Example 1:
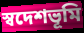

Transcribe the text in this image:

স্বদেশভূমি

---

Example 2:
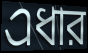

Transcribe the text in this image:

এধার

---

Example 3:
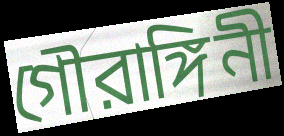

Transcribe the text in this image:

গৌরাঙ্গিনী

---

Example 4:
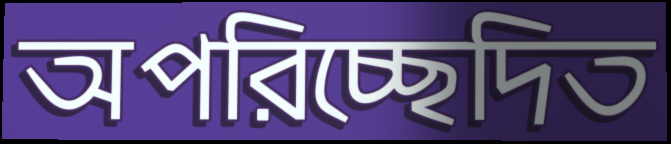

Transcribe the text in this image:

অপরিচ্ছেদিত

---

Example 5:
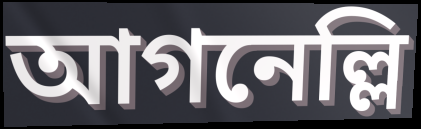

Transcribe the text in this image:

আগনেল্লি